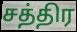
சத்திர